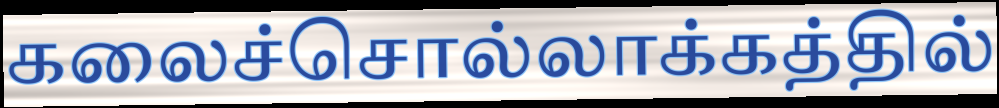
கலைச்சொல்லாக்கத்தில்